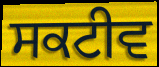
ਸਕਟੀਵ